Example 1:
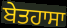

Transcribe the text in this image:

ਬੇਤਹਾਸਾ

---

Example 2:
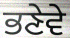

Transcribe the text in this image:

ਭਣੇਵੇ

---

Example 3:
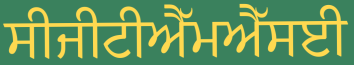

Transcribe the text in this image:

ਸੀਜੀਟੀਐੱਮਐੱਸਈ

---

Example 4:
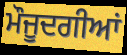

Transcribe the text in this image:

ਮੌਜੂਦਗੀਆਂ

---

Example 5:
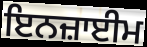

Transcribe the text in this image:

ਇਨਜ਼ਾਈਮ